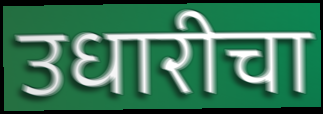
उधारीचा